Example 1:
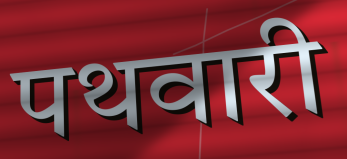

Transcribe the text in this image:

पथवारी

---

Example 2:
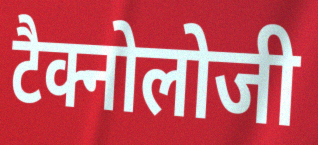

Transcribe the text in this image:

टैक्नोलोजी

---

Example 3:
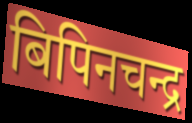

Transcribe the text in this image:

बिपिनचन्द्र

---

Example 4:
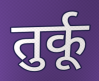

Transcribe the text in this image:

तुर्कू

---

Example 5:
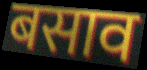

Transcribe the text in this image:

बसाव